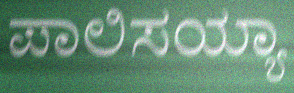
ಪಾಲಿಸಯ್ಯಾ